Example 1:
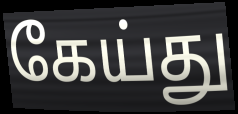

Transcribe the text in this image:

கேய்து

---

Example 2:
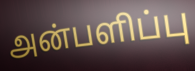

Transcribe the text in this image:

அன்பளிப்பு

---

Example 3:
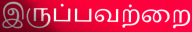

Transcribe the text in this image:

இருப்பவற்றை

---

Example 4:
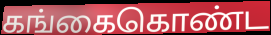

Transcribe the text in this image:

கங்கைகொண்ட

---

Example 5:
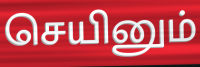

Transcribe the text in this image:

செயினும்